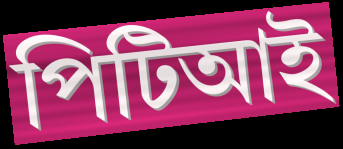
পিটিআই